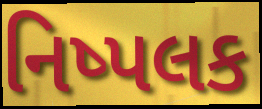
નિષ્પલક